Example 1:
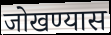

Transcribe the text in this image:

जोखण्यास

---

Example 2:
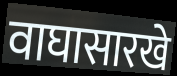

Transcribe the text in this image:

वाघासारखे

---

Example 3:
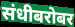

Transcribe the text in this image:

संधीबरोबर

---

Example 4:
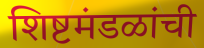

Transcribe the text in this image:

शिष्टमंडळांची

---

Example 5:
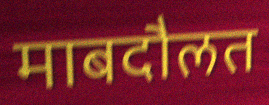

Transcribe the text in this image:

माबदौलत